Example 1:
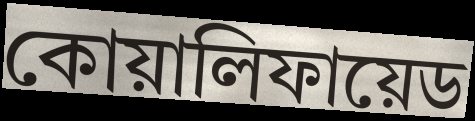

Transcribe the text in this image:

কোয়ালিফায়েড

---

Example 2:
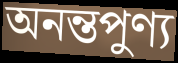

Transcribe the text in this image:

অনন্তপুণ্য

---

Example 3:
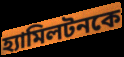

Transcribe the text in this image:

হ্যামিলটনকে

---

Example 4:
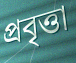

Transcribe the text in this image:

প্রবৃত্তা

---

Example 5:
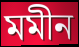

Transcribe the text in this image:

মমীন